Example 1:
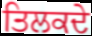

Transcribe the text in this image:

ਤਿਲਕਦੇ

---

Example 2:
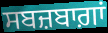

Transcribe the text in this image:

ਸਬਜ਼ਬਾਗ਼ਾਂ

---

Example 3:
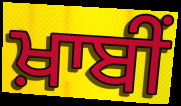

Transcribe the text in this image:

ਖ਼ਾਬੀਂ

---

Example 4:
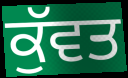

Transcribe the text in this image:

ਕੁੱਵਤ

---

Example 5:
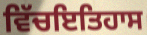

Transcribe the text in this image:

ਵਿੱਚਇਤਿਹਾਸ